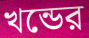
খন্ডের